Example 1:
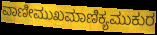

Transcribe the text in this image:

ವಾಣೀಮುಖಮಾಣಿಕ್ಯಮುಕುರ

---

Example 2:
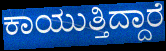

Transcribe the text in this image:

ಕಾಯುತ್ತಿದ್ದಾರೆ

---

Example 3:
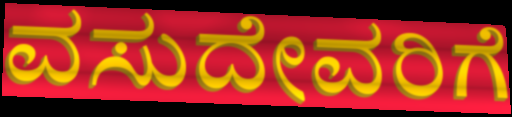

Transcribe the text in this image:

ವಸುದೇವರಿಗೆ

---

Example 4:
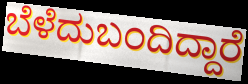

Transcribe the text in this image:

ಬೆಳೆದುಬಂದಿದ್ದಾರೆ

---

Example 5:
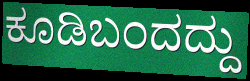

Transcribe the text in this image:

ಕೂಡಿಬಂದದ್ದು